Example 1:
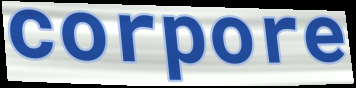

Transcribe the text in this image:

corpore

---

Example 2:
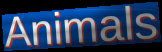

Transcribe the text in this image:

Animals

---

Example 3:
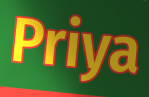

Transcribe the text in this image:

Priya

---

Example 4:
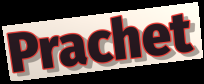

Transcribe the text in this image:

Prachet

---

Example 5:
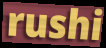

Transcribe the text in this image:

rushi